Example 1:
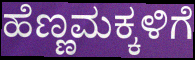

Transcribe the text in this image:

ಹೆಣ್ಣಮಕ್ಕಳಿಗೆ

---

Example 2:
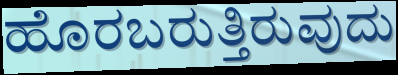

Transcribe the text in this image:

ಹೊರಬರುತ್ತಿರುವುದು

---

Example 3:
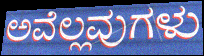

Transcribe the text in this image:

ಅವೆಲ್ಲವುಗಳು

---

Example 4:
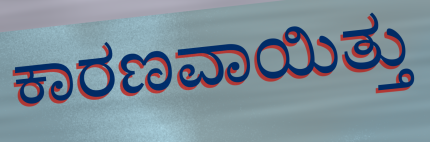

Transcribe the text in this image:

ಕಾರಣವಾಯಿತ್ತು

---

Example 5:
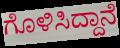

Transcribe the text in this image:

ಗೊಳಿಸಿದ್ದಾನೆ